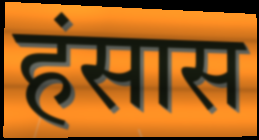
हंसास